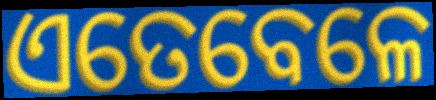
ଏତେବେଳେ